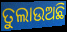
ତୁଲାଉଅଛି